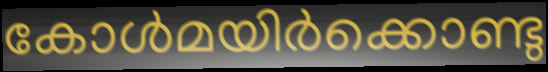
കോൾമയിർക്കൊണ്ടു